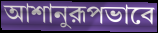
আশানুরূপভাবে